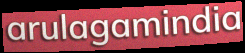
arulagamindia